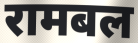
रामबल